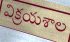
విక్రయశాల